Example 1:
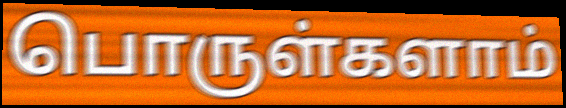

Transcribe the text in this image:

பொருள்களாம்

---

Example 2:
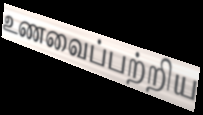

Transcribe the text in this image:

உணவைப்பற்றிய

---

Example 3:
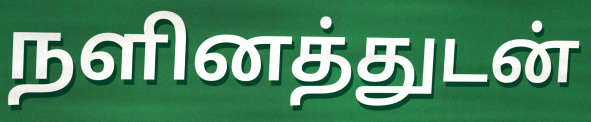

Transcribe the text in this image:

நளினத்துடன்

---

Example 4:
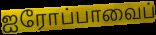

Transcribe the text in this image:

ஐரோப்பாவைப்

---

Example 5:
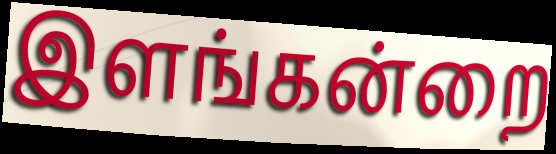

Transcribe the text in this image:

இளங்கன்றை